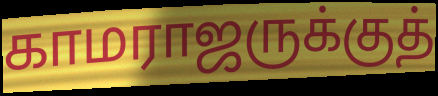
காமராஜருக்குத்